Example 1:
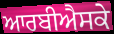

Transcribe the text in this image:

ਆਰਬੀਐਸਕੇ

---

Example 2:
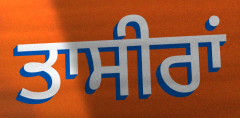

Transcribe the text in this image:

ਤਾਸੀਰਾਂ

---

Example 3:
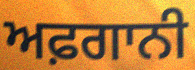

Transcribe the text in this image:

ਅਫ਼ਗਾਨੀ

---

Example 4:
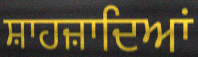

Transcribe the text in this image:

ਸ਼ਾਹਜ਼ਾਦਿਆਂ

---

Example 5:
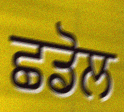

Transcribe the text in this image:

ਛਡੋਲ